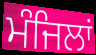
ਮੰਜਿਲਾਂ